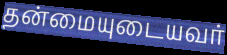
தன்மையுடையவர்